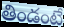
తిండంటే